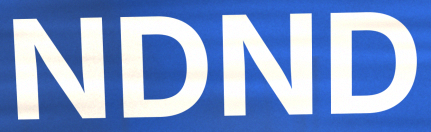
NDND